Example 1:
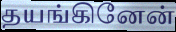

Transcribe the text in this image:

தயங்கினேன்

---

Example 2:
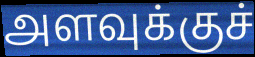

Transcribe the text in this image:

அளவுக்குச்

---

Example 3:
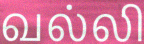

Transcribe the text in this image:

வல்லி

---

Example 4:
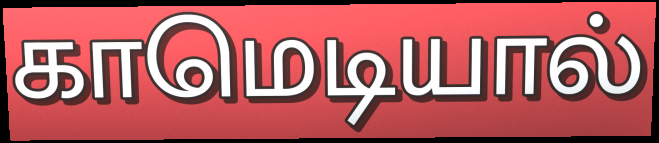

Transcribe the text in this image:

காமெடியால்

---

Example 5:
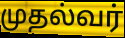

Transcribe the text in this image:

முதல்வர்